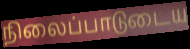
நிலைப்பாடுடைய